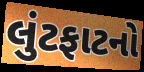
લુંટફાટનો